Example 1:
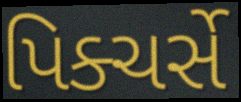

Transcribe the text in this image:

પિક્ચર્સે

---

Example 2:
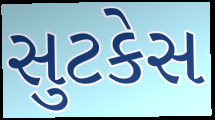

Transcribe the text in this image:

સુટકેસ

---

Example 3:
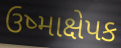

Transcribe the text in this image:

ઉષ્માક્ષેપક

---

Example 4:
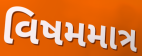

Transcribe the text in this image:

વિષમમાત્ર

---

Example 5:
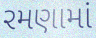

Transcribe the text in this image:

રમણામાં